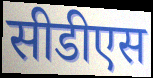
सीडीएस